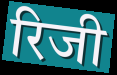
रिजी